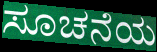
ಸೂಚನೆಯ